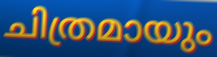
ചിത്രമായും